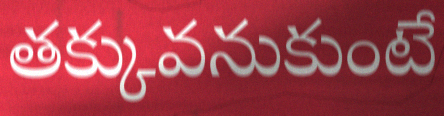
తక్కువనుకుంటే